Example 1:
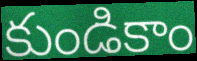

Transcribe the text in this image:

కుండికాం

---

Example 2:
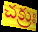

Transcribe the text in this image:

చక్రుః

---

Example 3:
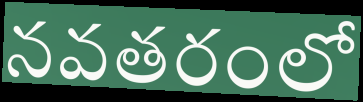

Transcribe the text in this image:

నవతరంలో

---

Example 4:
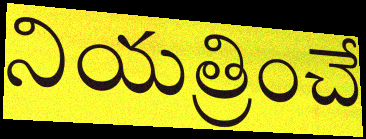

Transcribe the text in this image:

నియత్రించే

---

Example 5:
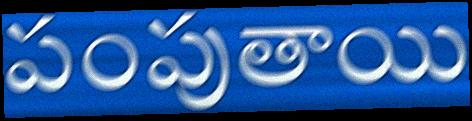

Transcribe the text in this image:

పంపుతాయి